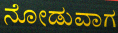
ನೋಡುವಾಗ